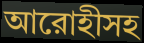
আরোহীসহ